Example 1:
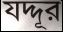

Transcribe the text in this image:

যদ্দূর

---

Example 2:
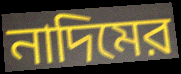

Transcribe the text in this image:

নাদিমের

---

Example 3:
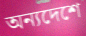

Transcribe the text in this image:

অন্যদেশে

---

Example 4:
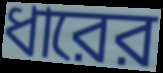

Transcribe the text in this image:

ধারের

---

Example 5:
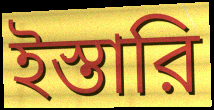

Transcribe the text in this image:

ইস্তারি